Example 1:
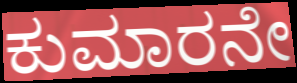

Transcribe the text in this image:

ಕುಮಾರನೇ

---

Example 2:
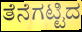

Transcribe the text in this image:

ತೆನೆಗಟ್ಟಿದ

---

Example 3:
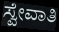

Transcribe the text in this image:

ಸ್ವೇವಾತಿ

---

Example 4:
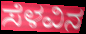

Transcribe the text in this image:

ಸೆಳವಿನ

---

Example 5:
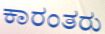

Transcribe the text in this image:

ಕಾರಂತರು